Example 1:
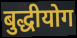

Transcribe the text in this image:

बुद्धीयोग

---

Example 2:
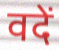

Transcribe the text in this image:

वदें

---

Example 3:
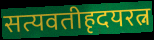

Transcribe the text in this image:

सत्यवतीहृदयरत्न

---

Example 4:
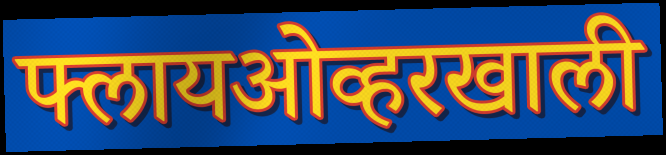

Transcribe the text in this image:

फ्लायओव्हरखाली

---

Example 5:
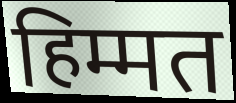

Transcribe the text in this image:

हिम्मत